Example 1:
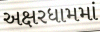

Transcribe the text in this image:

અક્ષરધામમાં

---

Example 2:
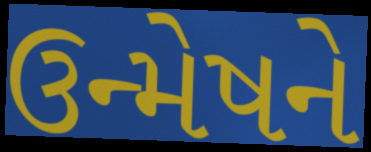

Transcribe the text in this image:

ઉન્મેષને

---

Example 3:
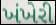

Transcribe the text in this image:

ખંખેરી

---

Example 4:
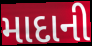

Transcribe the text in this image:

માદાની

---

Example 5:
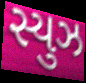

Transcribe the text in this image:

સ્યુઝ